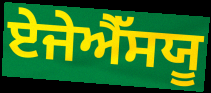
ਏਜੇਐੱਸਯੂ